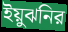
ইয়ুঝনির